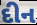
દીન